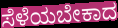
ಸೆಳೆಯಬೇಕಾದ